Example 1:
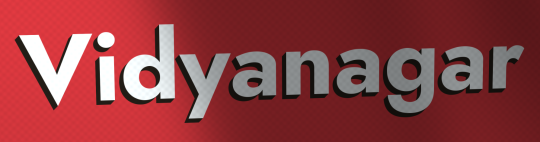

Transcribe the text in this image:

Vidyanagar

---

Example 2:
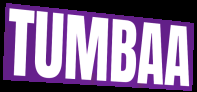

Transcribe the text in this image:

TUMBAA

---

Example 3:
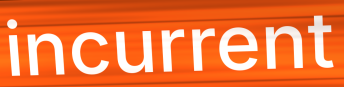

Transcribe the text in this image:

incurrent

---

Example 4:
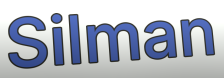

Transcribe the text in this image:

Silman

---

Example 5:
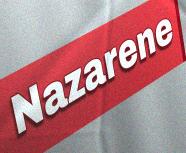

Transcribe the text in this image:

Nazarene